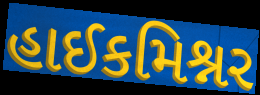
હાઈકમિશ્નર